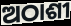
ଅଠାଶୀ